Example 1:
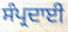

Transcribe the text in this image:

ਸੰਪ੍ਰਦਾਈ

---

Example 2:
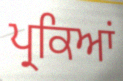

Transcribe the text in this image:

ਪ੍ਰਕਿਆਂ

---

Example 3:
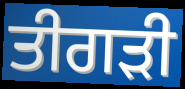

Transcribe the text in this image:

ਤੀਗੜੀ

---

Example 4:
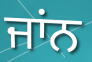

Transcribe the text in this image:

ਜਾਂਨ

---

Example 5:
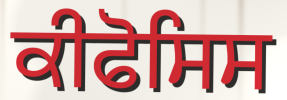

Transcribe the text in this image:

ਕੀਫੋਸਿਸ